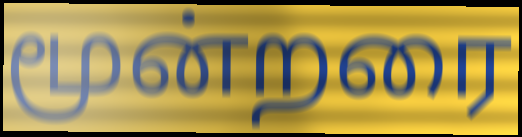
மூன்றரை